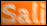
Sali